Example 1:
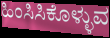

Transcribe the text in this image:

ಹಿಂಸಿಸಿಕೊಳ್ಳುವ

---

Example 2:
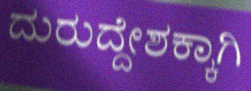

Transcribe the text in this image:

ದುರುದ್ದೇಶಕ್ಕಾಗಿ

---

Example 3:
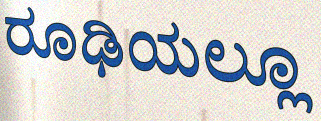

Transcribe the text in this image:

ರೂಢಿಯಲ್ಲೂ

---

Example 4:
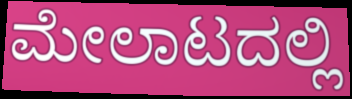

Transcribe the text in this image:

ಮೇಲಾಟದಲ್ಲಿ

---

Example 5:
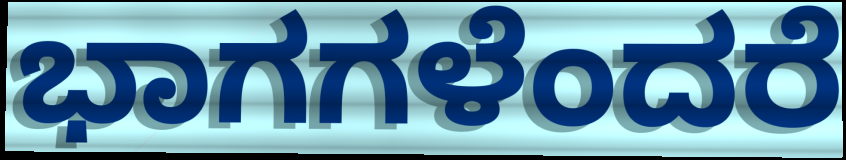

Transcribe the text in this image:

ಭಾಗಗಳೆಂದರೆ